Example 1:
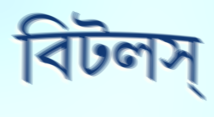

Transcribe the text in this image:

বিটলস্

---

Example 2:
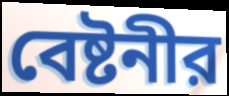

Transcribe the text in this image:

বেষ্টনীর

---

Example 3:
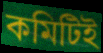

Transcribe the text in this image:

কমিটিই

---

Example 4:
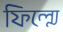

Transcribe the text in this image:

ফিল্মে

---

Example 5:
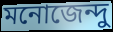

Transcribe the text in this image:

মনোজেন্দু